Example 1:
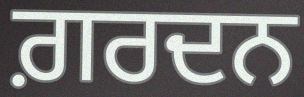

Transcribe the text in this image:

ਗ਼ਰਦਨ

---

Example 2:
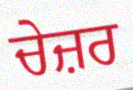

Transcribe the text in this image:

ਚੇਜ਼ਰ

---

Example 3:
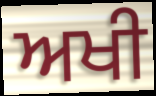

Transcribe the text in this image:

ਅਖੀ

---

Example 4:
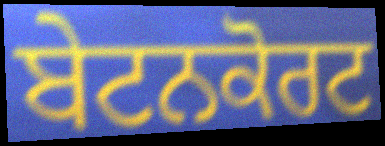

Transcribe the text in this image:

ਬੇਟਨਕੋਰਟ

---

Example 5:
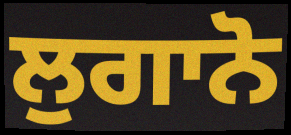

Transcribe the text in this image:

ਲੁਗਾਨੋ